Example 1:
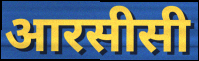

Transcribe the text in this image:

आरसीसी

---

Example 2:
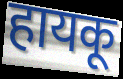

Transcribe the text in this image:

हायकू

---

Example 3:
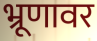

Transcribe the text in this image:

भ्रूणावर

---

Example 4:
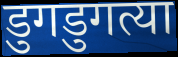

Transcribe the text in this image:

डुगडुगत्या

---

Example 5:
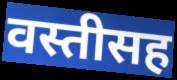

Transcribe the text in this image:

वस्तीसह